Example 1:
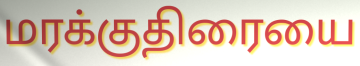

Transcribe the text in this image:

மரக்குதிரையை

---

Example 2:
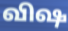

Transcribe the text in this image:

விஷ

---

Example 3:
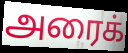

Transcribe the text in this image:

அரைக்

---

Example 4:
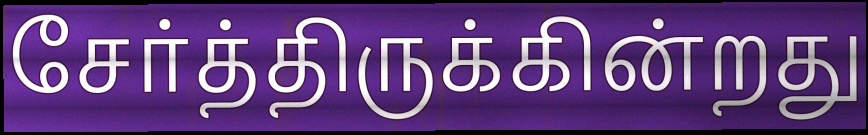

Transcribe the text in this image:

சேர்த்திருக்கின்றது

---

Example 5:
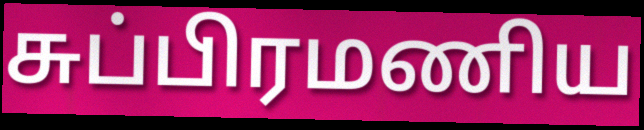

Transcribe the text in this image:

சுப்பிரமணிய